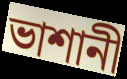
ভাশানী